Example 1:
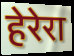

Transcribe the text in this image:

हेरेरा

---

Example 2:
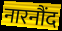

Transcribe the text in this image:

नारनौंद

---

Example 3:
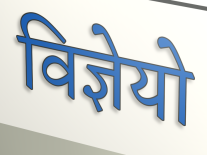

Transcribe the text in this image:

विज्ञेयो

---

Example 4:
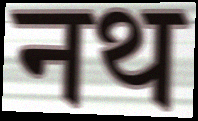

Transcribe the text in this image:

नथ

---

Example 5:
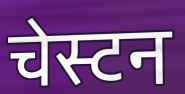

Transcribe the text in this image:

चेस्टन